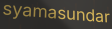
syamasundar